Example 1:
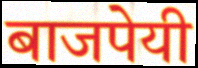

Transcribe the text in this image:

बाजपेयी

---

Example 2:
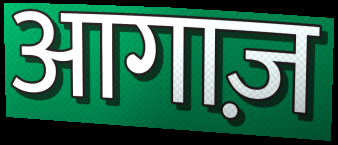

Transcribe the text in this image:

आगाज़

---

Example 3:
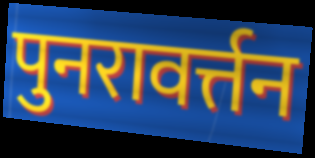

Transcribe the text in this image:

पुनरावर्त्तन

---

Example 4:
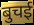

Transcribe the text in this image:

बुचई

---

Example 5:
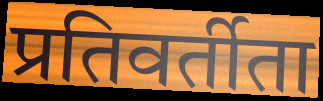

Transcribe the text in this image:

प्रतिवर्तीता